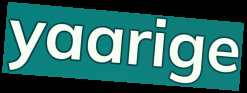
yaarige